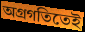
অগ্রগতিতেই